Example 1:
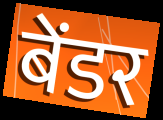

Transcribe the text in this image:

बेंडर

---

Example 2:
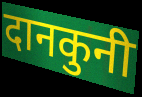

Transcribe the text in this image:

दानकुनी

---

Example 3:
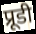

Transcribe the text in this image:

प्रूडी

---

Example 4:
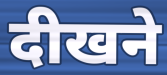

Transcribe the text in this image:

दीखने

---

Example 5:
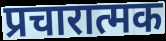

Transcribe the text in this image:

प्रचारात्मक